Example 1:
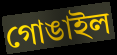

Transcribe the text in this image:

গোঙাইল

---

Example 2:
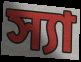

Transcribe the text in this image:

স্যা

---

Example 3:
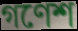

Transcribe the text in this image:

গণেশ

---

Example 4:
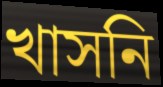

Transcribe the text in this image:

খাসনি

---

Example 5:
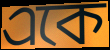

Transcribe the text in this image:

একে